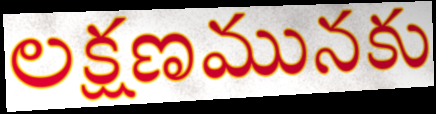
లక్షణమునకు